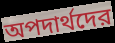
অপদার্থদের